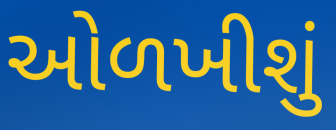
ઓળખીશું